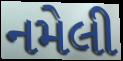
નમેલી